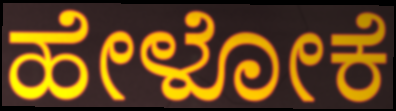
ಹೇಳೋಕೆ